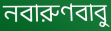
নবারুণবাবু